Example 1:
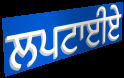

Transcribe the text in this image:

ਲਪਟਾਈਏ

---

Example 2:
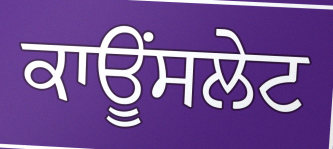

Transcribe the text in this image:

ਕਾਊਂਸਲੇਟ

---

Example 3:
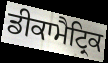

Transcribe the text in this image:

ਡੀਕਾਮੈਟ੍ਰਿਕ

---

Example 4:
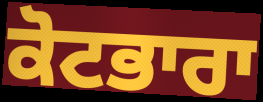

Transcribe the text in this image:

ਕੋਟਭਾਰਾ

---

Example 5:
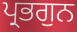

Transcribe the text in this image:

ਪ੍ਰਭਗੁਨ